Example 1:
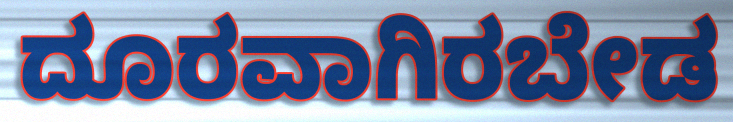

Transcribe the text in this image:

ದೂರವಾಗಿರಬೇಡ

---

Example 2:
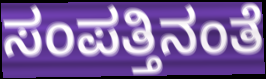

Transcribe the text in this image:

ಸಂಪತ್ತಿನಂತೆ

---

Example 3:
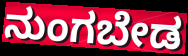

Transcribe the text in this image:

ನುಂಗಬೇಡ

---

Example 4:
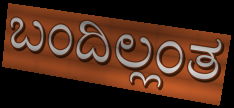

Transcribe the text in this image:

ಬಂದಿಲ್ಲಂತ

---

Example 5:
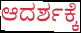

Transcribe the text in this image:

ಆದರ್ಶಕ್ಕೆ